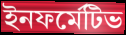
ইনফর্মেটিভ